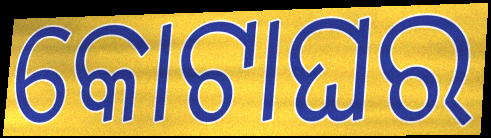
କୋଟାଘର